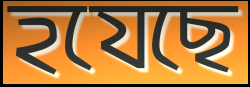
হযেছে